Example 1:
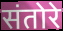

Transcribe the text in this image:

संतोरे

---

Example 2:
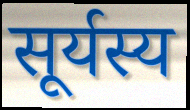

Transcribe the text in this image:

सूर्यस्य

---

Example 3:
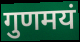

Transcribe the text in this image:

गुणमयं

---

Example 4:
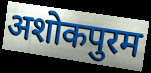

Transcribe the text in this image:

अशोकपुरम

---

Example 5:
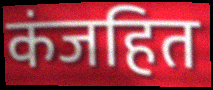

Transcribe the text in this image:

कंजहित